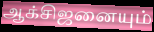
ஆக்சிஜனையும்